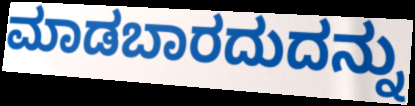
ಮಾಡಬಾರದುದನ್ನು